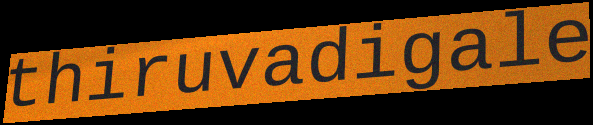
thiruvadigale